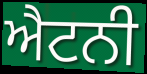
ਐਟਨੀ